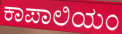
ಕಾಪಾಲಿಯಂ